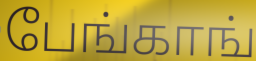
பேங்காங்